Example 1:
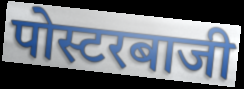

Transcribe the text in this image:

पोस्टरबाजी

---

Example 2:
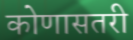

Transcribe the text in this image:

कोणासतरी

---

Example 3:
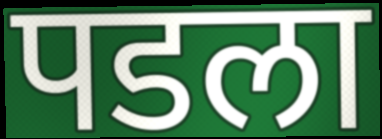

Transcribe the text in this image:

पडला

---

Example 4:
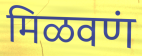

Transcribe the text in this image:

मिळवणं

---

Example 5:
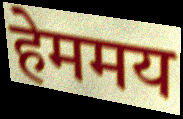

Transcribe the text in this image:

हेममय